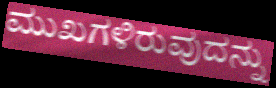
ಮುಖಗಳಿರುವುದನ್ನು